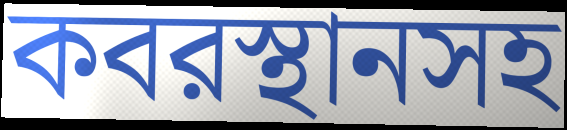
কবরস্থানসহ